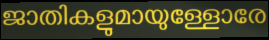
ജാതികളുമായുള്ളോരേ